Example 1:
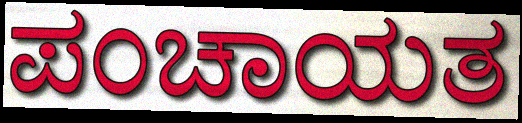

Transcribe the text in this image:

ಪಂಚಾಯತ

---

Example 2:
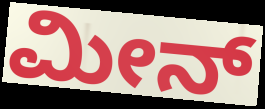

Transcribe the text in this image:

ಮೀನ್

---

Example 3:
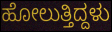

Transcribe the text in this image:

ಹೋಲುತ್ತಿದ್ದಳು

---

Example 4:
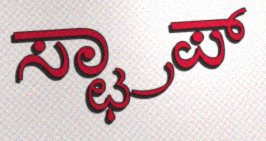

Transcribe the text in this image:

ಸ್ಟ್ರಾಪ್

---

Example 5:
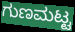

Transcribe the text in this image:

ಗುಣಮಟ್ಟ